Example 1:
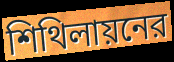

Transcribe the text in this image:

শিথিলায়নের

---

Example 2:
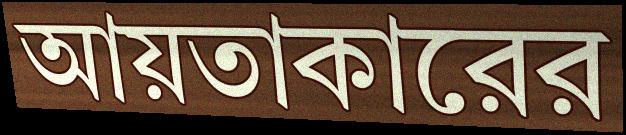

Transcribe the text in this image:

আয়তাকারের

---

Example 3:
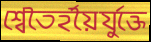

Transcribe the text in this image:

শ্বেতৈর্হয়ৈর্যুক্তে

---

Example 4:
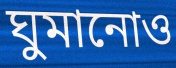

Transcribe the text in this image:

ঘুমানোও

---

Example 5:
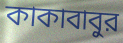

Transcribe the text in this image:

কাকাবাবুর